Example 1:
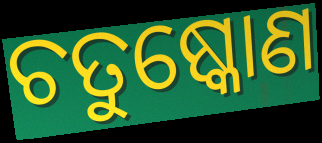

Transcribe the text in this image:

ଚତୁଷ୍କୋଣ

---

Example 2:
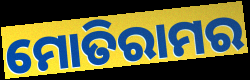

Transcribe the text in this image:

ମୋତିରାମର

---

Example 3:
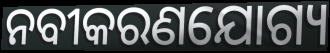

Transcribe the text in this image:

ନବୀକରଣଯୋଗ୍ୟ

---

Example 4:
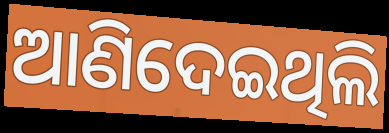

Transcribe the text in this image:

ଆଣିଦେଇଥିଲି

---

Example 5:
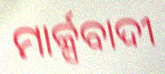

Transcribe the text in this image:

ମାର୍କ୍ସବାଦୀ